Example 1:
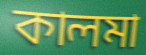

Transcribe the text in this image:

কালমা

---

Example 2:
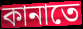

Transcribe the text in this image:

কানাতে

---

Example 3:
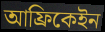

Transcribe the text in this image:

আফ্রিকেইন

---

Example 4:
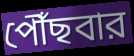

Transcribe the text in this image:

পৌঁছবার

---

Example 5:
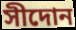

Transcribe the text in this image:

সীদোন